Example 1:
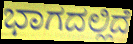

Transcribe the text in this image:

ಭಾಗದಲ್ಲಿದೆ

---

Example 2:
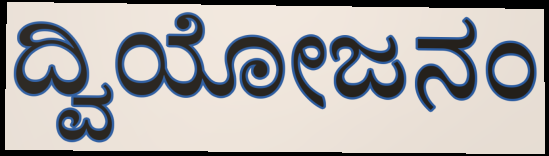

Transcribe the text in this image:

ದ್ವಿಯೋಜನಂ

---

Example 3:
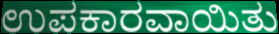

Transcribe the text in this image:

ಉಪಕಾರವಾಯಿತು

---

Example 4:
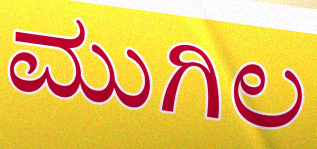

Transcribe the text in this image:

ಮುಗಿಲ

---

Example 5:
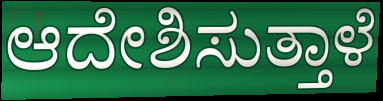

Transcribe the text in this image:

ಆದೇಶಿಸುತ್ತಾಳೆ